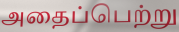
அதைப்பெற்று